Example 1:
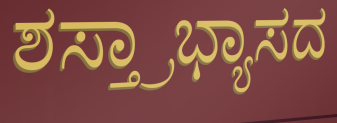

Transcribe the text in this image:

ಶಸ್ತ್ರಾಭ್ಯಾಸದ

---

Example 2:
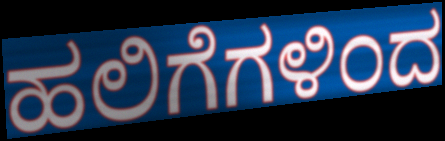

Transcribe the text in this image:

ಹಲಿಗೆಗಳಿಂದ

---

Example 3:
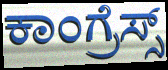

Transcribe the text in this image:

ಕಾಂಗ್ರೆಸ್ಸ್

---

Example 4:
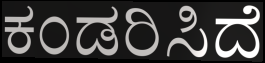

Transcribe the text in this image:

ಕಂಡರಿಸಿದೆ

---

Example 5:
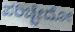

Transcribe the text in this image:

ಪರಿಚ್ಛೇದೋ